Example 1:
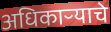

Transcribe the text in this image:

अधिकाऱ्याचे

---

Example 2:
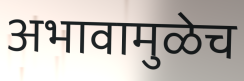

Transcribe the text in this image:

अभावामुळेच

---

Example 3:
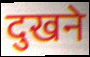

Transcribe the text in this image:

दुखने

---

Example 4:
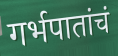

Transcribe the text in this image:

गर्भपातांचं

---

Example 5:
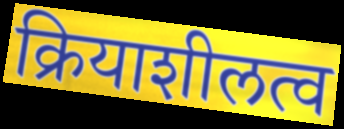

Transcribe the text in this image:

क्रियाशीलत्व